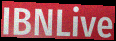
IBNLive